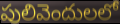
పులివెందులలో